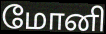
மோனி